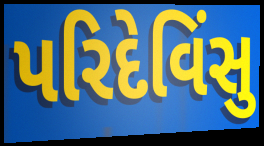
પરિદેવિંસુ